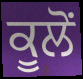
ਕੂਲੋਂ